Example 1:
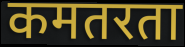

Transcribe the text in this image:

कमतरता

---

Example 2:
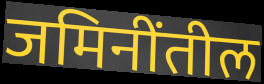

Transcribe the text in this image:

जमिनींतील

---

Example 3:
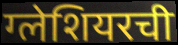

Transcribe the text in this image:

ग्लेशियरची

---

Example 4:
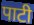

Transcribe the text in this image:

पाटी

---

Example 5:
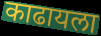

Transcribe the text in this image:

काढायला